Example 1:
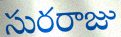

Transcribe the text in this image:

సురరాజు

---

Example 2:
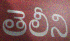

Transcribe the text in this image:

తెలీని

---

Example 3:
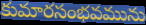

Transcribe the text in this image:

కుమారసంభవమును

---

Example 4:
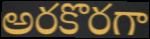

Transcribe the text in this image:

అరకొరగా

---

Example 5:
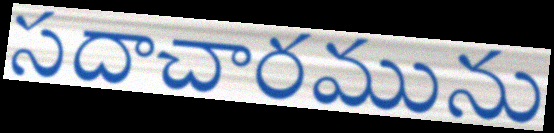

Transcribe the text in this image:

సదాచారమును